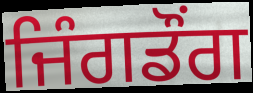
ਜਿੰਗਡੌਂਗ